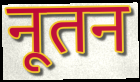
नूतन